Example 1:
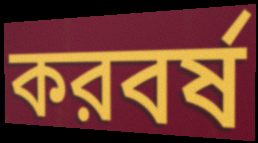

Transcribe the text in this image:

করবর্ষ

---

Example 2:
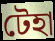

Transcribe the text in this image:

টেহা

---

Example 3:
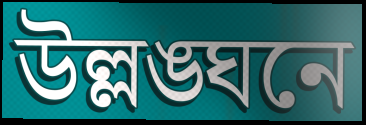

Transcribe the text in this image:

উল্লঙ্ঘনে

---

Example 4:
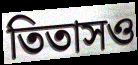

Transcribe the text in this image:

তিতাসও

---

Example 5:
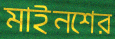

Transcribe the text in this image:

মাইনশের